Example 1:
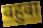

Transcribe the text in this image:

वहुवा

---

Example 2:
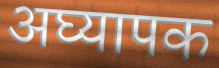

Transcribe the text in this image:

अघ्यापक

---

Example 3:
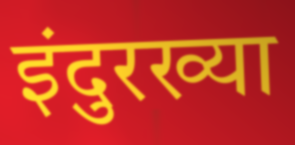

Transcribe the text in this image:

इंदुरख्या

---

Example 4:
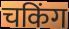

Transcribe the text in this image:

चकिंग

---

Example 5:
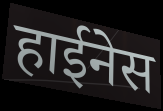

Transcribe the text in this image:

हाईनेस